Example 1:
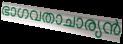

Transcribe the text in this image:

ഭാഗവതാചാര്യൻ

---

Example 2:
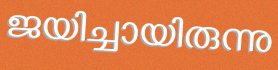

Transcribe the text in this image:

ജയിച്ചായിരുന്നു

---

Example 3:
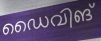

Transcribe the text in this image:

ഡൈവിങ്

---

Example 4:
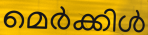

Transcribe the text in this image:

മെർക്കിൾ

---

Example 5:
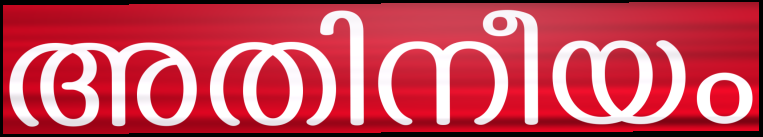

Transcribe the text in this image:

അതിനീയം